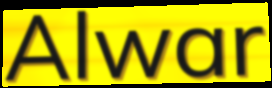
Alwar